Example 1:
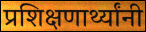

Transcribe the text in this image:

प्रशिक्षणार्थ्यांनी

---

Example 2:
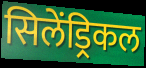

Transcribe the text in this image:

सिलेंड्रिकल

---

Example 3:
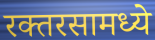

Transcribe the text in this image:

रक्तरसामध्ये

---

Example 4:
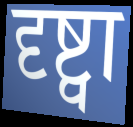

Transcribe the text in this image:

दृष्ट्वा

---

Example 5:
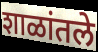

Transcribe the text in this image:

शाळांतले